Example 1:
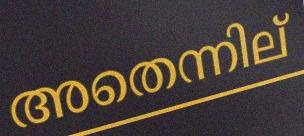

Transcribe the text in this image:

അതെന്നില്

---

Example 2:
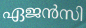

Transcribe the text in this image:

ഏജൻസി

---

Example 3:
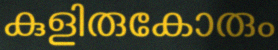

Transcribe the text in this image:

കുളിരുകോരും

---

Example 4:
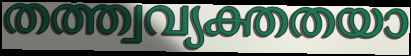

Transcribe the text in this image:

തത്ത്വവ്യക്തതയാ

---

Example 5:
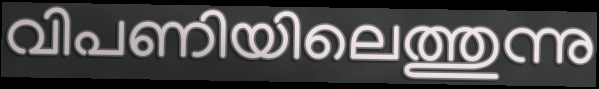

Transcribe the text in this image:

വിപണിയിലെത്തുന്നു